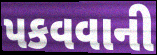
પકવવાની